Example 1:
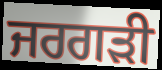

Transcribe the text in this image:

ਜਰਗੜੀ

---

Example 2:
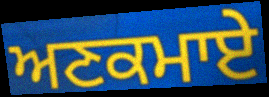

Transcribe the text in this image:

ਅਣਕਮਾਏ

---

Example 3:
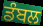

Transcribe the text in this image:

ਡੰਬਲ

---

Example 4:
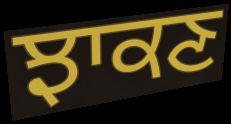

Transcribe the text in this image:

ਝਾਕਣ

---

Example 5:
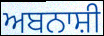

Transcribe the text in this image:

ਅਬਨਾਸ਼ੀ